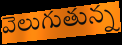
వెలుగుతున్న